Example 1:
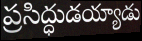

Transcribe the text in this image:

ప్రసిద్ధుడయ్యాడు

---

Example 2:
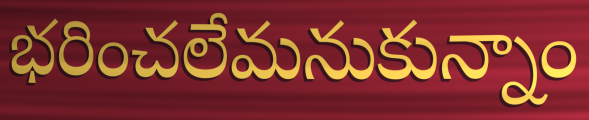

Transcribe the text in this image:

భరించలేమనుకున్నాం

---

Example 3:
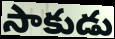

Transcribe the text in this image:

సాకుడు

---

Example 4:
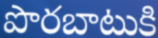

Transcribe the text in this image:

పొరబాటుకి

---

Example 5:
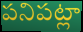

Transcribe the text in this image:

పనిపట్లా